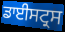
ਡਾਈਸਟ੍ਰਸ